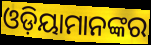
ଓଡ଼ିୟାମାନଙ୍କର